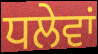
ਧਲੇਵਾਂ